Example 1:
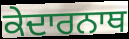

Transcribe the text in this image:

ਕੇਦਾਰਨਾਥ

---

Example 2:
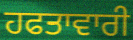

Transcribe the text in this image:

ਹਫਤਾਵਾਰੀ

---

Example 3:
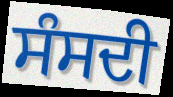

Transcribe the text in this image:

ਸੰਸਦੀ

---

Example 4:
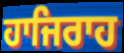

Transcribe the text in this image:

ਹਾਜਿਰਾਹ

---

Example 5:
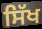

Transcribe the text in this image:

ਸਿੱਖ